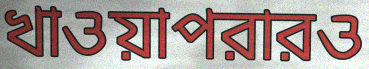
খাওয়াপরারও